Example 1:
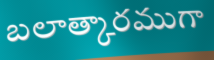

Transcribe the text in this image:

బలాత్కారముగా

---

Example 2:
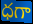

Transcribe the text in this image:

ధగా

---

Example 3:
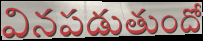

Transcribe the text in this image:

వినపడుతుందో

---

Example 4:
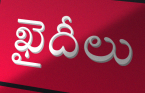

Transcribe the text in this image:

ఖైదీలు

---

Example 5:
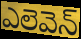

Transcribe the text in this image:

ఎలెవెన్